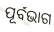
ପୂର୍ବଭାଗ